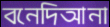
বনেদিআনা